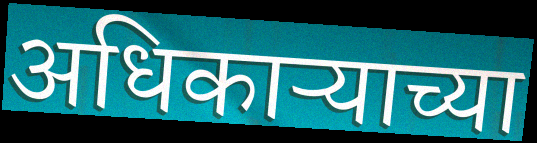
अधिकाऱ्याच्या